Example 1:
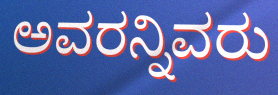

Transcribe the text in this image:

ಅವರನ್ನಿವರು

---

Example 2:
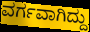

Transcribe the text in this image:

ವರ್ಗವಾಗಿದ್ದು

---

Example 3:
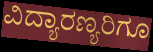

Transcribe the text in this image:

ವಿದ್ಯಾರಣ್ಯರಿಗೂ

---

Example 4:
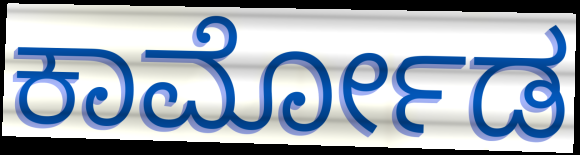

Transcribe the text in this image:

ಕಾರ್ಮೋಡ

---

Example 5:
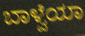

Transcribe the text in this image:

ಬಾಳ್ವೆಯಾ